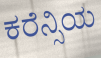
ಕರೆನ್ಸಿಯ